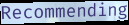
Recommending